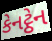
કેનટ્ઠેન